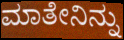
ಮಾತೇನಿನ್ನು